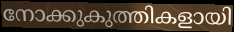
നോക്കുകുത്തികളായി